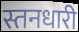
स्तनधारी